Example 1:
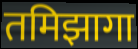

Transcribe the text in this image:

तमिझागा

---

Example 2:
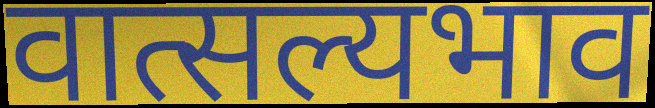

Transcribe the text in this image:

वात्सल्यभाव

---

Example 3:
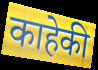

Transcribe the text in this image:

काहेकी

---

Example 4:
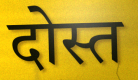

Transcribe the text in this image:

दोस्‍त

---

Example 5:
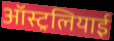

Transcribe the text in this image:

ऑस्ट्रलियाई